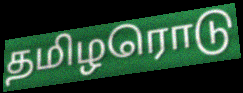
தமிழரொடு